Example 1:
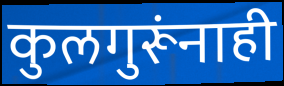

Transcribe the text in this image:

कुलगुरूंनाही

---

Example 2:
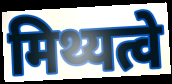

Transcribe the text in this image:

मिथ्यत्वे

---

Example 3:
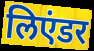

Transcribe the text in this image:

लिएंडर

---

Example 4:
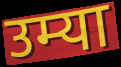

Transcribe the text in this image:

उम्या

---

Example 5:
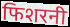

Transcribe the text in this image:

फिशरनी